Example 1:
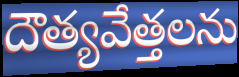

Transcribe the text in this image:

దౌత్యవేత్తలను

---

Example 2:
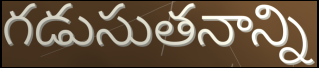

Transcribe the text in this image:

గడుసుతనాన్ని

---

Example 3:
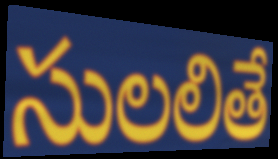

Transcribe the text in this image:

సులలితే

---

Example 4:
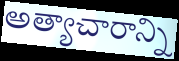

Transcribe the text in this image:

అత్యాచారాన్ని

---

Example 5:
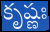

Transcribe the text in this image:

కృష్ణః